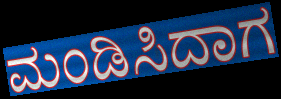
ಮಂಡಿಸಿದಾಗ